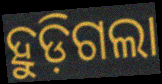
ହୁଡ଼ିଗଲା